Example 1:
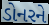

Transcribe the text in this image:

ડોનરને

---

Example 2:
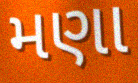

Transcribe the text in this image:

મણા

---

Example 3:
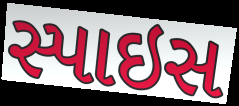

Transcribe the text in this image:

સ્પાઇસ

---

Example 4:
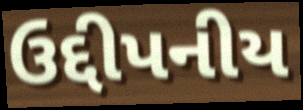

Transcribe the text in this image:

ઉદ્દીપનીય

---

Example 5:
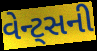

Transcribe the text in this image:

વેન્ટ્સની